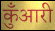
कुँआरी